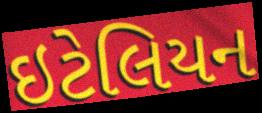
ઇટેલિયન